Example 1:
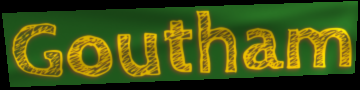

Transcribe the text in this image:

Goutham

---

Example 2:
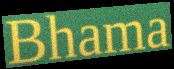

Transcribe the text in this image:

Bhama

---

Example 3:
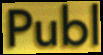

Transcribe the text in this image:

Publ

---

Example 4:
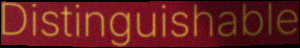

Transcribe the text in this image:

Distinguishable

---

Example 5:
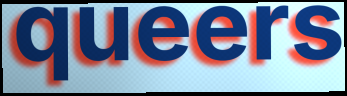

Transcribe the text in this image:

queers